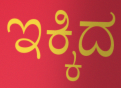
ಇಕ್ಕಿದ